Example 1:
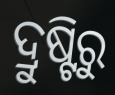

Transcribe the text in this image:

ଦ୍ରୁଷ୍ଟିରୁ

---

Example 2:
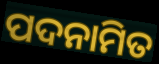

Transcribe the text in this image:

ପଦନାମିତ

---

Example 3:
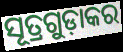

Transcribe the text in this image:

ସୂତ୍ରଗୁଡ଼ାକର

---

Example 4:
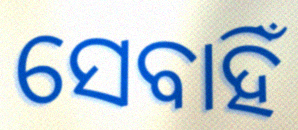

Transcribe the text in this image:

ସେବାହିଁ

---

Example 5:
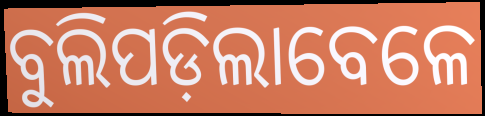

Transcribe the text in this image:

ବୁଲିପଡ଼ିଲାବେଳେ